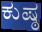
ಕುಷ್ಠ